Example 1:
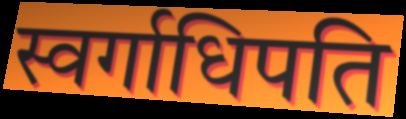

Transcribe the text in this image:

स्वर्गाधिपति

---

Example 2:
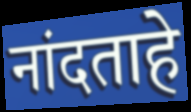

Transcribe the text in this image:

नांदताहे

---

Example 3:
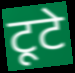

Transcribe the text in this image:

टूटे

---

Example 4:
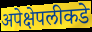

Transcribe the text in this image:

अपेक्षेपलीकडे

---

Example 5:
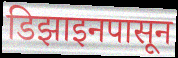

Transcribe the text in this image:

डिझाइनपासून